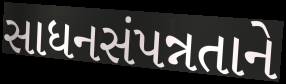
સાધનસંપન્નતાને